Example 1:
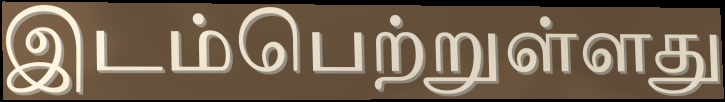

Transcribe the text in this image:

இடம்பெற்றுள்ளது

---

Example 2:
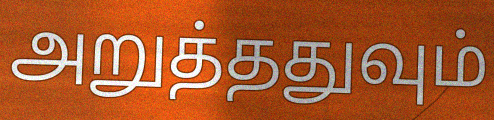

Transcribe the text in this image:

அறுத்ததுவும்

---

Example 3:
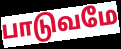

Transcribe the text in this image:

பாடுவமே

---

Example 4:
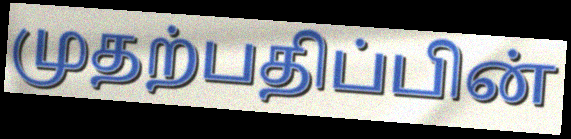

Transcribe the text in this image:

முதற்பதிப்பின்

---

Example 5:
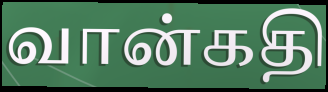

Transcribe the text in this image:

வான்கதி